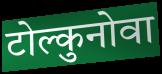
टोल्कुनोवा